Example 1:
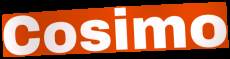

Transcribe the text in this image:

Cosimo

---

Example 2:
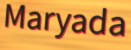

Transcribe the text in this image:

Maryada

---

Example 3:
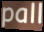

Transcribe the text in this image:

pall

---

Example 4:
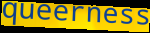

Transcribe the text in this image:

queerness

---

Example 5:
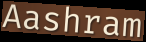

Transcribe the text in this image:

Aashram